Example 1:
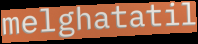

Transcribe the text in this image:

melghatatil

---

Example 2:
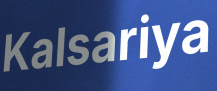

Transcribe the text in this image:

Kalsariya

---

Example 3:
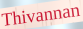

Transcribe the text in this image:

Thivannan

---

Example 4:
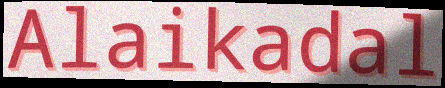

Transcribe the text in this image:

Alaikadal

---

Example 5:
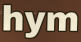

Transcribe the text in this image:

hym